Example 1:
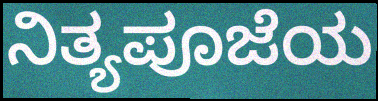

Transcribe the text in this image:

ನಿತ್ಯಪೂಜೆಯ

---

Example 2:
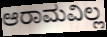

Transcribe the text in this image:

ಆರಾಮವಿಲ್ಲ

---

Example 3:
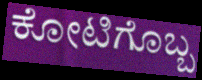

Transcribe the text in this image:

ಕೋಟಿಗೊಬ್ಬ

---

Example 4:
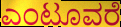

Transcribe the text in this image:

ಎಂಟೂವರೆ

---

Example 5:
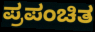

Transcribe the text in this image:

ಪ್ರಪಂಚಿತ